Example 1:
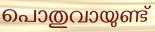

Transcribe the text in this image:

പൊതുവായുണ്ട്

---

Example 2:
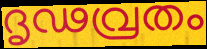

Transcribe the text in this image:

ദൃഢവ്രതം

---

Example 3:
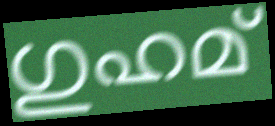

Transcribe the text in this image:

ഗുഹമ്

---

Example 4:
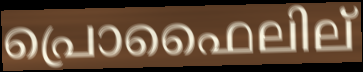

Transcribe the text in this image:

പ്രൊഫൈലില്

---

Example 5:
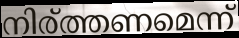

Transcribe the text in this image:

നിര്ത്തണമെന്ന്